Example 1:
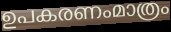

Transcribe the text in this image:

ഉപകരണംമാത്രം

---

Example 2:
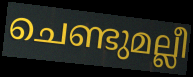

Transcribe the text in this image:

ചെണ്ടുമല്ലീ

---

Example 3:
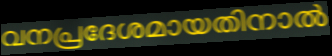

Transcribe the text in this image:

വനപ്രദേശമായതിനാൽ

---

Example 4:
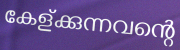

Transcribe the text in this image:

കേള്ക്കുന്നവന്റെ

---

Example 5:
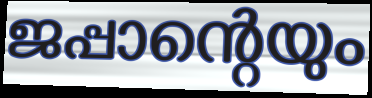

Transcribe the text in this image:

ജപ്പാന്റെയും